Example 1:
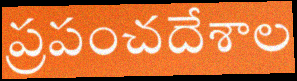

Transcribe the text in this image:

ప్రపంచదేశాల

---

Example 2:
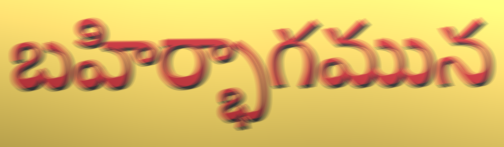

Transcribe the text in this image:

బహిర్భాగమున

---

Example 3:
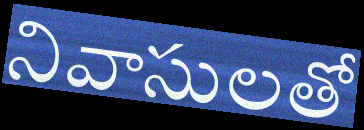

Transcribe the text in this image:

నివాసులతో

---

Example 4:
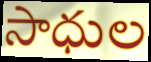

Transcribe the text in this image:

సాధుల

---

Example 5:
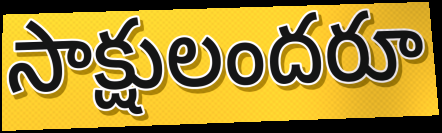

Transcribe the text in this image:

సాక్షులందరూ